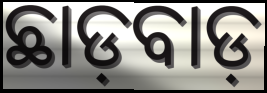
ଛାଡ଼ବାଡ଼